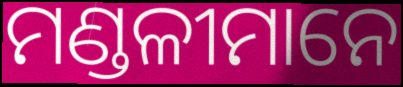
ମଣ୍ଡଳୀମାନେ